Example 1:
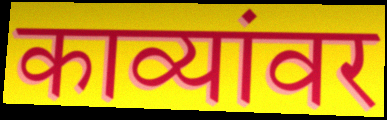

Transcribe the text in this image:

काव्यांवर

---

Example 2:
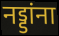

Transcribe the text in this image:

नड्डांना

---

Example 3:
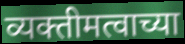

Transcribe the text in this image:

व्यक्तीमत्वाच्या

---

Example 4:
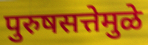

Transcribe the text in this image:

पुरुषसत्तेमुळे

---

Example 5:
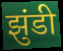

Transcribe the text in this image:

झुंडी